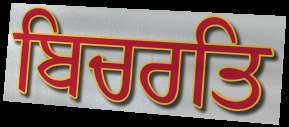
ਬਿਚਰਤਿ